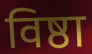
विष्ठा